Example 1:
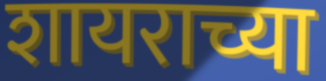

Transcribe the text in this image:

शायराच्या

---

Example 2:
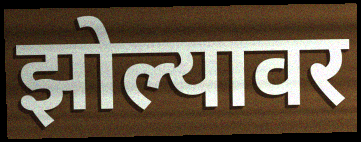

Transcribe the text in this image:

झोल्यावर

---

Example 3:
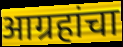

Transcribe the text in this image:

आग्रहांचा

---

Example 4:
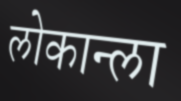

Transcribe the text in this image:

लोकान्ला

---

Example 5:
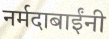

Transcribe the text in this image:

नर्मदाबाईंनी